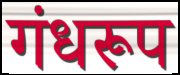
गंधरूप